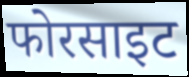
फोरसाइट